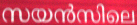
സയൻസിലെ